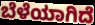
ಬೆಳೆಯಾಗಿದೆ